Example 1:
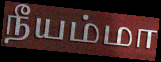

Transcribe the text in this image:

நீயம்மா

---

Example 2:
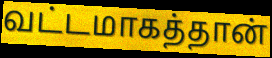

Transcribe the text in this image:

வட்டமாகத்தான்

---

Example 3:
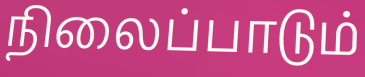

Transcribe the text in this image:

நிலைப்பாடும்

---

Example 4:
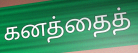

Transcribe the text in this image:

கனத்தைத்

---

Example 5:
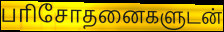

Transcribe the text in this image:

பரிசோதனைகளுடன்